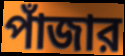
পাঁজার